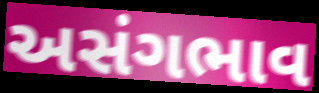
અસંગભાવ